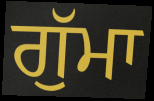
ਗੁੱਮਾ